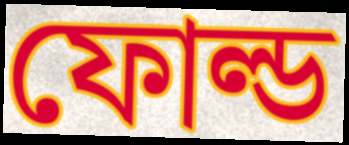
ফোল্ড